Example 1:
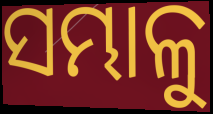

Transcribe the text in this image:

ସମ୍ଭାଳୁ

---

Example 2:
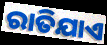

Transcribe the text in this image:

ରାତିଯାଏ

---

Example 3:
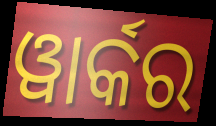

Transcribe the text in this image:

ୱାର୍କର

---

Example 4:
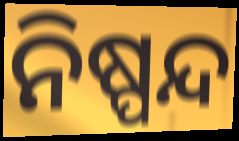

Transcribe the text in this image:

ନିଷ୍ପନ୍ଦ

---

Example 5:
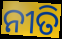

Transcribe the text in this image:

ନୀତି